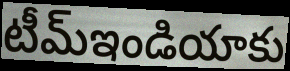
టీమ్ఇండియాకు